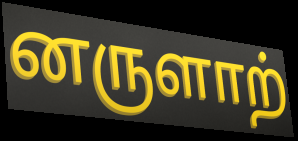
னருளாற்